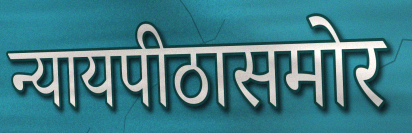
न्यायपीठासमोर